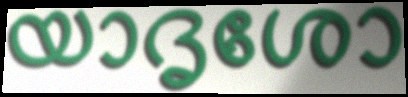
യാദൃശോ